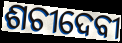
ଶଚୀଦେବୀ